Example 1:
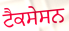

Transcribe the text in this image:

ਟੈਕਸੇਸਨ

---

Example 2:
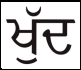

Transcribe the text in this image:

ਖੁੱਦ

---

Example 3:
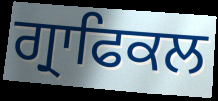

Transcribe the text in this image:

ਗ੍ਰਾਫਿਕਲ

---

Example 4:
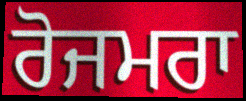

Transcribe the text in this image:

ਰੋਜਮਰਾ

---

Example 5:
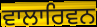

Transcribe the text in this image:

ਵਾਲਾਰਿਵਨ